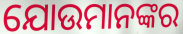
ଯୋଉମାନଙ୍କର